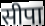
सीपा